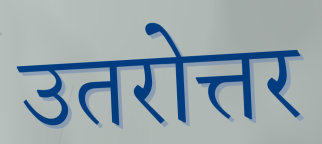
उतरोत्तर